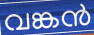
വങ്കൻ